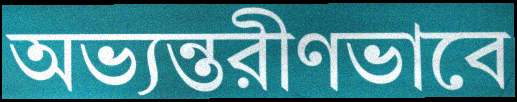
অভ্যন্তরীণভাবে